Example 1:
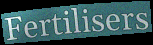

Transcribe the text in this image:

Fertilisers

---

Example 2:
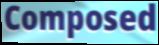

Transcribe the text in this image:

Composed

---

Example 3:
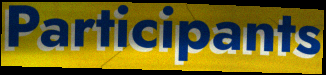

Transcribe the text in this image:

Participants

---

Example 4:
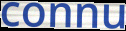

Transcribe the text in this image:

connu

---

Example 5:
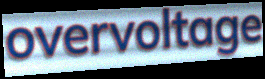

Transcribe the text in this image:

overvoltage